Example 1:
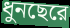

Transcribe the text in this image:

ধুনছেরে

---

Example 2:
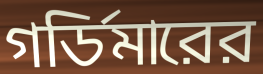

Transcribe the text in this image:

গর্ডিমারের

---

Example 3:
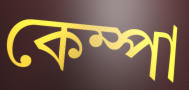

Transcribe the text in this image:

কেম্পা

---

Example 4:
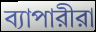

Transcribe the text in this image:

ব্যাপারীরা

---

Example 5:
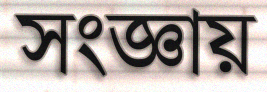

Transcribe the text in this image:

সংজ্ঞায়